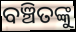
ବଞ୍ଚିତଙ୍କୁ